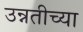
उन्नतीच्या